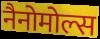
नैनोमोल्स